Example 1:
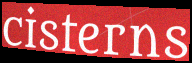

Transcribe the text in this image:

cisterns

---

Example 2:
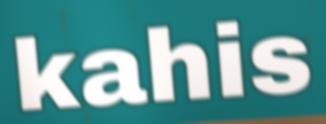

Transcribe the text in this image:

kahis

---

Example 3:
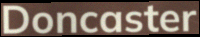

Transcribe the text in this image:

Doncaster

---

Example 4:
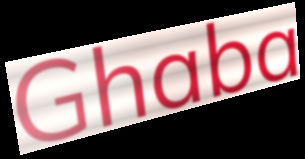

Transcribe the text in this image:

Ghaba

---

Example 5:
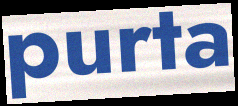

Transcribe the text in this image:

purta